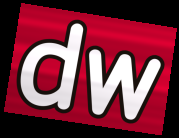
dw